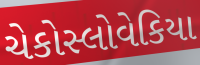
ચેકોસ્લોવેકિયા